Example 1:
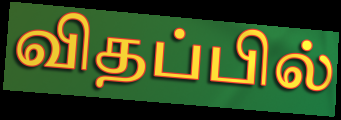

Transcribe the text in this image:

விதப்பில்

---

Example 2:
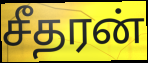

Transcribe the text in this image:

சீதரன்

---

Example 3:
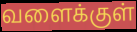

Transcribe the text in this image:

வளைக்குள்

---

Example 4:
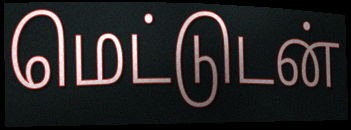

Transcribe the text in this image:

மெட்டுடன்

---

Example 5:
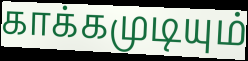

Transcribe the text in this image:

காக்கமுடியும்